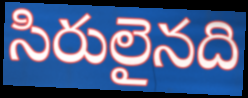
సిరులైనది